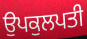
ਉਪਕੁਲਪਤੀ